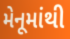
મેનૂમાંથી